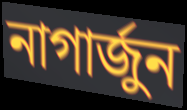
নাগাৰ্জুন